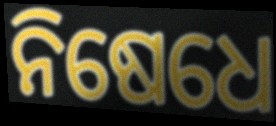
ନିଷେଧେ